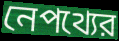
নেপথ্যের